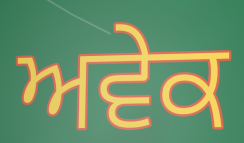
ਅਵੇਕ